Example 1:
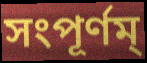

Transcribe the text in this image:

সংপূর্ণম্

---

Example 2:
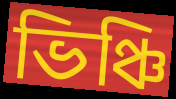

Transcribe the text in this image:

ভিঞ্চি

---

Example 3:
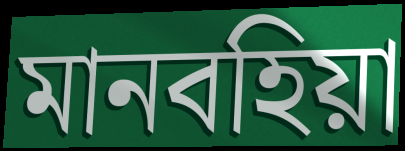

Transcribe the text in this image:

মানবহিয়া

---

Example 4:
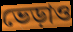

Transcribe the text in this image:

ভেড়াও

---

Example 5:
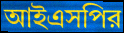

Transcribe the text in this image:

আইএসপির